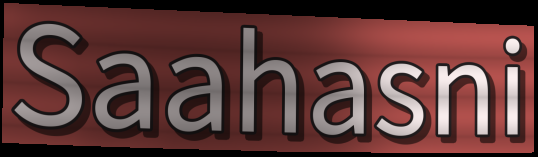
Saahasni